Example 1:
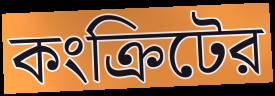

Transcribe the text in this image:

কংক্রিটের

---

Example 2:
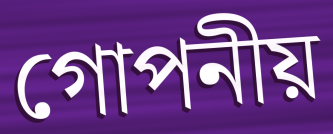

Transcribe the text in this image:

গোপনীয়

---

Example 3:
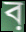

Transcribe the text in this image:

ব়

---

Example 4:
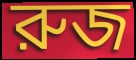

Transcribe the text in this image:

রুজ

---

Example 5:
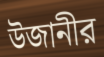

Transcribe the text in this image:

উজানীর